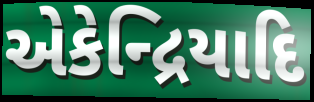
એકેન્દ્રિયાદિ